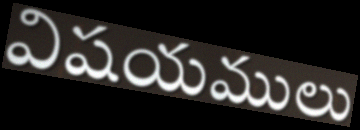
విషయములు